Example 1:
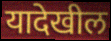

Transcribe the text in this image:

यादेखील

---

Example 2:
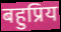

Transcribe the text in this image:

बहुप्रिय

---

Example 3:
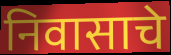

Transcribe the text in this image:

निवासाचे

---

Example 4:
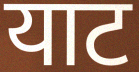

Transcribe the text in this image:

याट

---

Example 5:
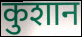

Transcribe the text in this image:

कुशान